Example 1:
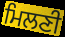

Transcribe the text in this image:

ਮਿਲਣੀ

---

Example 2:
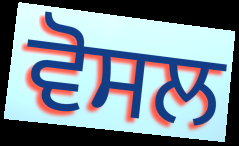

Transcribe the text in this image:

ਵੋਸਲ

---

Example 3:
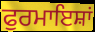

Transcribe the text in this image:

ਫੁਰਮਾਇਸ਼ਾਂ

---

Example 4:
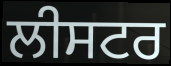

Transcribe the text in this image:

ਲੀਸਟਰ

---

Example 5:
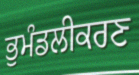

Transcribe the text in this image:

ਭੁਮੰਡਲੀਕਰਣ